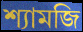
শ্যামজি